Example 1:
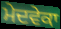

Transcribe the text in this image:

ਮੇਦਵੇਕਾ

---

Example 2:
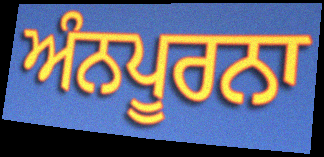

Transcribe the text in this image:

ਅੰਨਪੂਰਨਾ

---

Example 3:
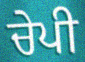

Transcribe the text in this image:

ਚੇਪੀ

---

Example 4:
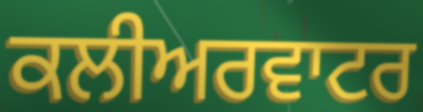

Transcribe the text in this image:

ਕਲੀਅਰਵਾਟਰ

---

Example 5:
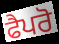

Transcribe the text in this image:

ਫੈਪਰੋ